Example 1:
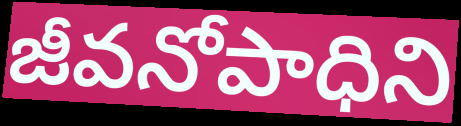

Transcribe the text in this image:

జీవనోపాధిని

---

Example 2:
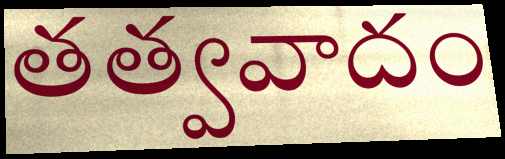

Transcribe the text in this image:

తత్వవాదం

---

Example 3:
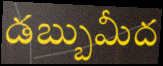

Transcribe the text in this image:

డబ్బుమీద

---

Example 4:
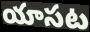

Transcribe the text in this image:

యాసట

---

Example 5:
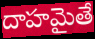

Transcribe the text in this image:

దాహమైతే